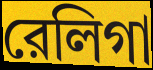
রেলিগা